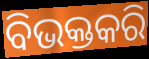
ବିଭକ୍ତକରି